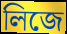
লিজে